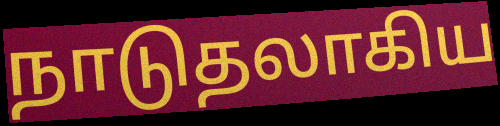
நாடுதலாகிய